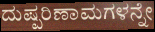
ದುಷ್ಪರಿಣಾಮಗಳನ್ನೇ